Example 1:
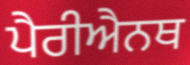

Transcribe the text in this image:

ਪੈਰੀਐਨਥ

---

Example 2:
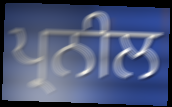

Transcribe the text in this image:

ਪ੍ਰਨੀਲ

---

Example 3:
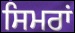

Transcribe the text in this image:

ਸਿਮਰਾਂ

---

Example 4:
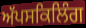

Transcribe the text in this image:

ਅੱਪਸਕਿਲਿੰਗ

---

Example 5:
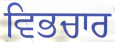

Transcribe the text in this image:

ਵਿਭਚਾਰ